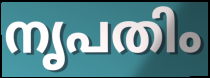
നൃപതിം